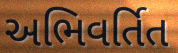
અભિવર્તિત